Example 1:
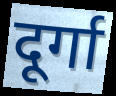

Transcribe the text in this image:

दूर्गा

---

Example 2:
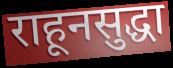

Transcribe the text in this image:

राहूनसुद्धा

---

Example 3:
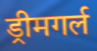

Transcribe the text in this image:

ड्रीमगर्ल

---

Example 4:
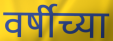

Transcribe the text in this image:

वर्षीच्या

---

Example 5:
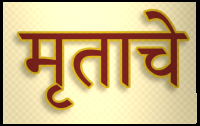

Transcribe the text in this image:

मृताचे